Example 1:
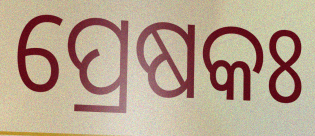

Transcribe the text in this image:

ପ୍ରେଷକଃ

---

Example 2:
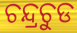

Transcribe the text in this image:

ଚନ୍ଦ୍ରଚୁଡ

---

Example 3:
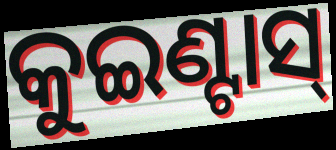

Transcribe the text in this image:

କୁଇଣ୍ଟାସ୍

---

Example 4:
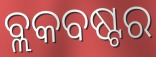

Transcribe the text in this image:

ବ୍ଲକବଷ୍ଟର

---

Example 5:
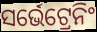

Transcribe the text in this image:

ସର୍ଭେଟ୍ରେନିଂ